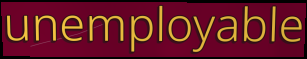
unemployable